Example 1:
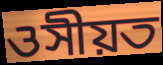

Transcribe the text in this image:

ওসীয়ত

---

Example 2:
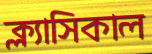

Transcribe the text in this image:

ক্ল্যাসিকাল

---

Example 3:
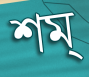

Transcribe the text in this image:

শম্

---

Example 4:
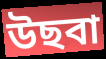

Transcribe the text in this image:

উছবা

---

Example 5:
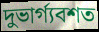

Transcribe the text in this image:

দুভার্গ্যবশত